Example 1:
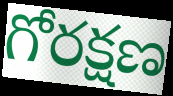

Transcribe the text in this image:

గోరక్షణ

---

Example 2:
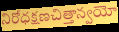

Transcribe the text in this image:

నిరోధక్షణచిత్తాన్వయో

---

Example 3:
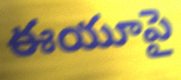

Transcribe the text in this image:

ఈయూపై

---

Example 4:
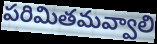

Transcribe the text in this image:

పరిమితమవ్వాలి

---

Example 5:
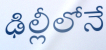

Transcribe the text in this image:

ఢిల్లీలోనే